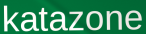
katazone